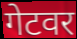
गेटवर